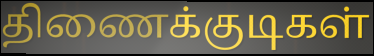
திணைக்குடிகள்